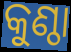
କୁଣ୍ଠା